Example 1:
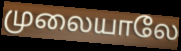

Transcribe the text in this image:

முலையாலே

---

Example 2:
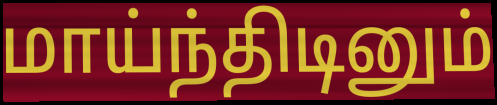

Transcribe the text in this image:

மாய்ந்திடினும்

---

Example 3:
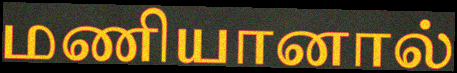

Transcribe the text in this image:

மணியானால்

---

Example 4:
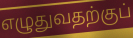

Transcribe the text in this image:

எழுதுவதற்குப்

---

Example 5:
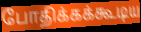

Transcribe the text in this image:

போதிக்கக்கூடிய